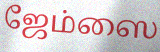
ஜேம்ஸை